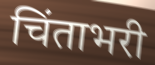
चिंताभरी